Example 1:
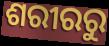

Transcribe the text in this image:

ଶରୀରରୁ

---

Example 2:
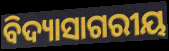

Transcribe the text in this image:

ବିଦ୍ୟାସାଗରୀୟ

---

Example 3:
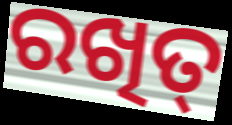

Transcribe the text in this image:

ରଖିତ୍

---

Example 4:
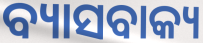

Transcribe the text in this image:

ବ୍ୟାସବାକ୍ୟ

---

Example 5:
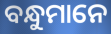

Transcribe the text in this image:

ବନ୍ଧୁମାନେ